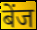
बेंज